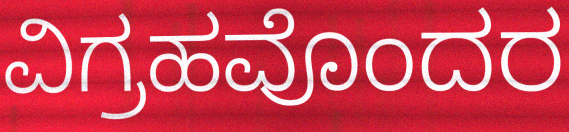
ವಿಗ್ರಹವೊಂದರ